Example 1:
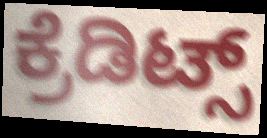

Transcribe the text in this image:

ಕ್ರೆಡಿಟ್ಸ್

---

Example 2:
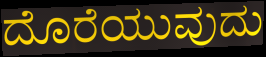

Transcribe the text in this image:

ದೊರೆಯುವುದು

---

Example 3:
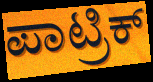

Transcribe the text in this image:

ಪಾಟ್ರಿಕ್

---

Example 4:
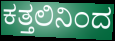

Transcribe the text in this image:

ಕತ್ತಲಿನಿಂದ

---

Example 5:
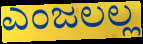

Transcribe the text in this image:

ಎಂಜಲಲ್ಲ